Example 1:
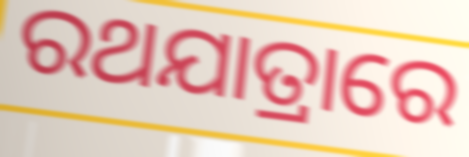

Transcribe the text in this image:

ରଥଯାତ୍ରାରେ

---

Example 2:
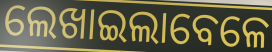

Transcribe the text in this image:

ଲେଖାଇଲାବେଳେ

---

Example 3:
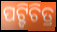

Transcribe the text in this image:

ପଟ୍ଟିଚିତ୍ର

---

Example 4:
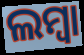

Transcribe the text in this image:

ଲମ୍ବା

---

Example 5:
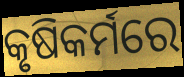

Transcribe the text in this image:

କୃଷିକର୍ମରେ